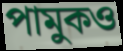
পামুকও